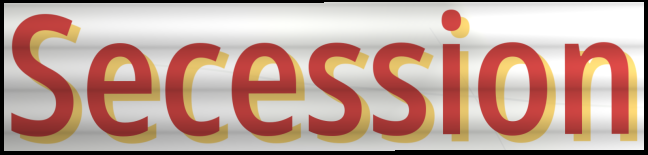
Secession